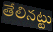
తేలినట్టు